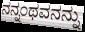
ನನ್ನಂಥವನನ್ನು